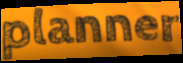
planner